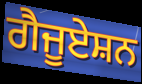
ਗੈਜੂਏਸ਼ਨ